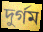
দুর্গম